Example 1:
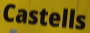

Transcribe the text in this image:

Castells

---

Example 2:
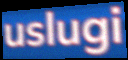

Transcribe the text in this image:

uslugi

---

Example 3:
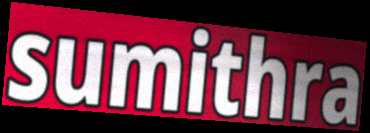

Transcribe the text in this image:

sumithra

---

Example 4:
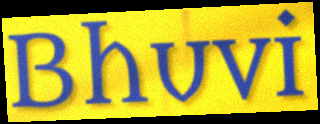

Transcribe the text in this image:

Bhuvi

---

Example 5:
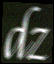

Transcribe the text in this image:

dz